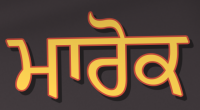
ਮਾਰੋਕ